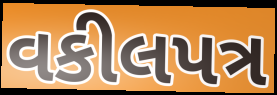
વકીલપત્ર